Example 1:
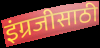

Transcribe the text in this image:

इंग्रजीसाठी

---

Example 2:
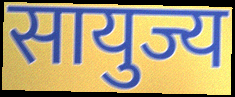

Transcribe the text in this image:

सायुज्य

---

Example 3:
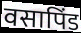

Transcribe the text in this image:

वसापिंड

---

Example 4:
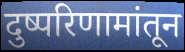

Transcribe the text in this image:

दुष्परिणामांतून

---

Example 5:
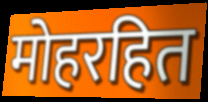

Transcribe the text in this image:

मोहरहित